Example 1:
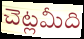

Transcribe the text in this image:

చెట్లమీది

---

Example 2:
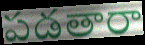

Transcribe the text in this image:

పడతారా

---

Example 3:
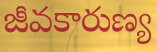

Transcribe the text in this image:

జీవకారుణ్య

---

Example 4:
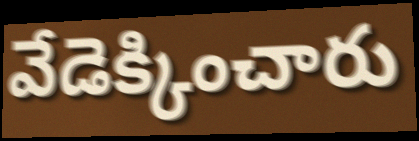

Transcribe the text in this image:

వేడెక్కించారు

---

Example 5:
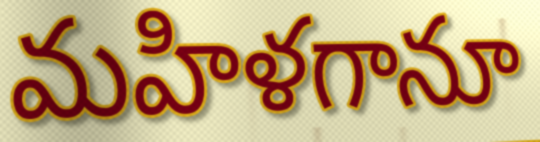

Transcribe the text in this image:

మహిళగానూ